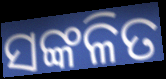
ସଙ୍କଳିତ